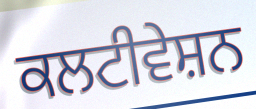
ਕਲਟੀਵੇਸ਼ਨ